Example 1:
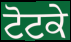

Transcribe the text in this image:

ਟੋਟਕੇ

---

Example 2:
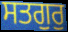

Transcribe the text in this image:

ਸਤਗੁਰੁ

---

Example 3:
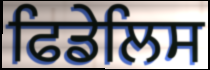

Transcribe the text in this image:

ਫਿਡੇਲਿਸ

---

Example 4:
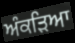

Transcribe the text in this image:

ਅੰਕੜਿਆ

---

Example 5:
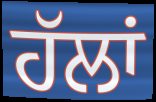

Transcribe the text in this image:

ਹੱਲਾਂ